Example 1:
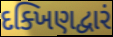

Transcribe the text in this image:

દક્ખિણદ્વારં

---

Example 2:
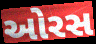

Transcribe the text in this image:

ઓરસ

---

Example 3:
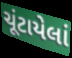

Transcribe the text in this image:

ચૂંટાયેલાં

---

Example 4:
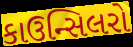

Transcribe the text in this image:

કાઉન્સિલરો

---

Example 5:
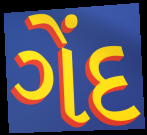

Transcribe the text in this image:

ગેંદ